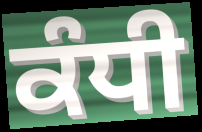
ਕੰਧੀ